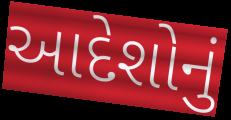
આદેશોનું